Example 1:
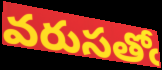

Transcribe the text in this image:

వరుసతోఁ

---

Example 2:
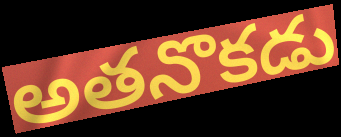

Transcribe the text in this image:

అతనొకడు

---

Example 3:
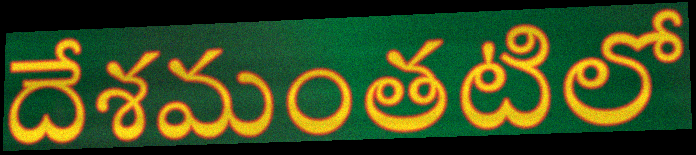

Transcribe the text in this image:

దేశమంతటిలో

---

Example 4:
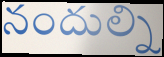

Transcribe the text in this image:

నందుల్ని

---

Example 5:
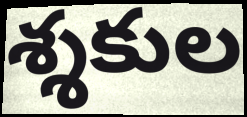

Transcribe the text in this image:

శ్శకుల